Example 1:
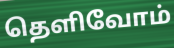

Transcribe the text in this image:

தெளிவோம்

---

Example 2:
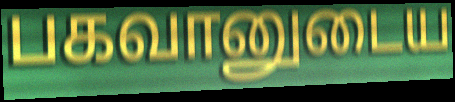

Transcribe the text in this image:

பகவானுடைய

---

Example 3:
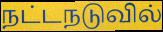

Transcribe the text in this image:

நட்டநடுவில்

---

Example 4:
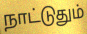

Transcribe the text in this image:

நாட்டுதும்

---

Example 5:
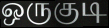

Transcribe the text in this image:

ஒருகுடி